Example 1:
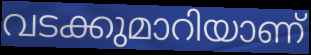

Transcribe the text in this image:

വടക്കുമാറിയാണ്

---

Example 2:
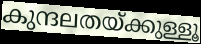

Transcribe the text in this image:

കുന്ദലതയ്ക്കുള്ളൂ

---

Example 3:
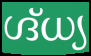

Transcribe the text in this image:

ഗ്ദ്ധ്യ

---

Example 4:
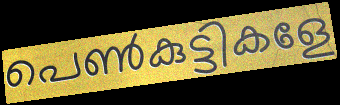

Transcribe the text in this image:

പെൺകുട്ടികളേ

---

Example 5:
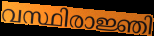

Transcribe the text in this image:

വസ്ഥിരാജ്ഞി